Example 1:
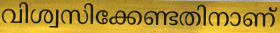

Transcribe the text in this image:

വിശ്വസിക്കേണ്ടതിനാണ്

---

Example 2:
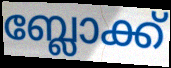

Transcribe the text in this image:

ബ്ലോക്ക്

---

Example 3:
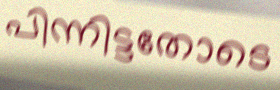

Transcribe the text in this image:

പിന്നിട്ടതോടെ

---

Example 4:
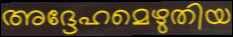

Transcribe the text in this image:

അദ്ദേഹമെഴുതിയ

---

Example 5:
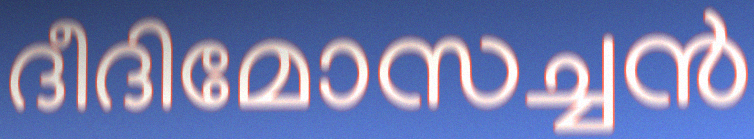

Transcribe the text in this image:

ദീദിമോസച്ചൻ